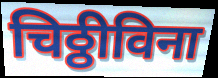
चिठ्ठीविना